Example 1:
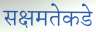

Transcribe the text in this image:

सक्षमतेकडे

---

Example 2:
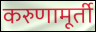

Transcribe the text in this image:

करुणामूर्ती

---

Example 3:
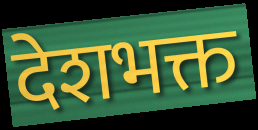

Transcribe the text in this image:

देशभक्त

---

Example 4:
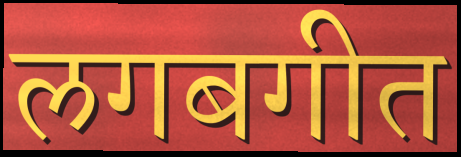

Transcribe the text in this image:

लगबगीत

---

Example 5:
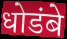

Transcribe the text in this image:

धोडंबे